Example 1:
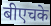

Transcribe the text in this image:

बीएचके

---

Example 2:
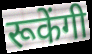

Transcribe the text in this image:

रूकेंगी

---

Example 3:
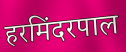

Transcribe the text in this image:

हरमिंदरपाल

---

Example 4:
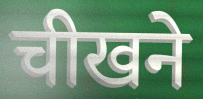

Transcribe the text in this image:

चीखने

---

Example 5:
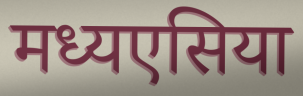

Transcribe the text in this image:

मध्यएसिया